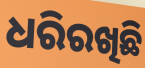
ଧରିରଖିଛି